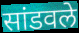
सांडवले